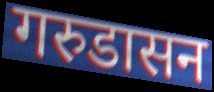
गरुडासन